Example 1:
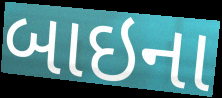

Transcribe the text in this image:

બાઇના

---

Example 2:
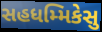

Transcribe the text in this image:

સહધમ્મિકેસુ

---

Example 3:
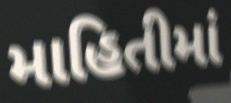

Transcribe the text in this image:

માહિતીમાં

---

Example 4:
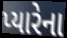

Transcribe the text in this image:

પ્યારેના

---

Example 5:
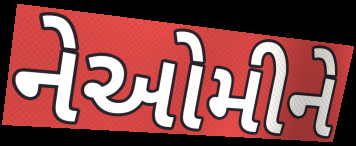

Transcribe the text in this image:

નેઓમીને